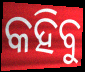
କହିବୁ